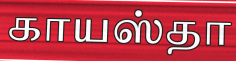
காயஸ்தா